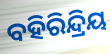
ବହିରିନ୍ଦ୍ରିୟ